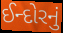
ઈન્દોરનું